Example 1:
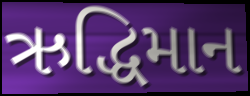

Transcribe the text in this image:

ઋદ્ધિમાન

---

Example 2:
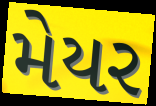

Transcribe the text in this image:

મેયર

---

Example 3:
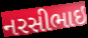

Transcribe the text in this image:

નરસીભાઇ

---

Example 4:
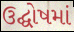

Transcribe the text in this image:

ઉદ્ઘોષમાં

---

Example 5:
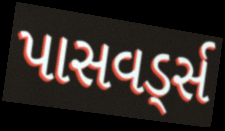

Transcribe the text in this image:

પાસવર્ડ્સ